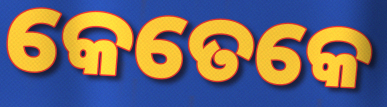
କେତେକେ